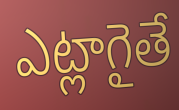
ఎట్లాగైతే